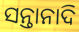
ସନ୍ତାନାଦି